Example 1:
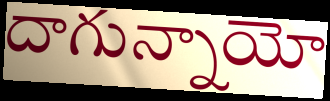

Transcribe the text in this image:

దాగున్నాయో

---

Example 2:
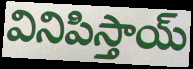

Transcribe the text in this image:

వినిపిస్తాయ్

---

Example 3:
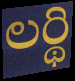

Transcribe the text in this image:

లర్థి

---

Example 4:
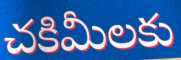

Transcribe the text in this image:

చకిమీలకు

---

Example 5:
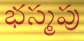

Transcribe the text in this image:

భస్మపు